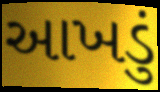
આખડું